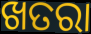
ଖତରା